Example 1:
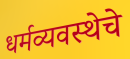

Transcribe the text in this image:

धर्मव्यवस्थेचे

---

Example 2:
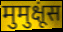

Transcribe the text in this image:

मुमुक्षूंस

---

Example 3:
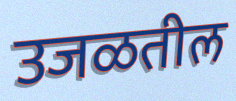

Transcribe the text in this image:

उजळतील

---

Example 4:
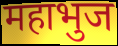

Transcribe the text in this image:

महाभुज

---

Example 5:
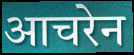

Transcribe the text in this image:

आचरेन